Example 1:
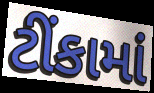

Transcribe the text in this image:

ટીંકામાં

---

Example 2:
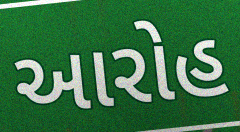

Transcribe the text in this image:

આરોહ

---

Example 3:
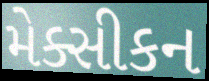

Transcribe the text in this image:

મેક્સીકન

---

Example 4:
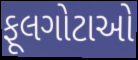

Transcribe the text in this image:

ફૂલગોટાઓ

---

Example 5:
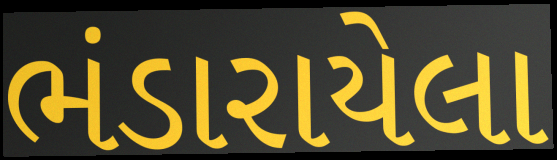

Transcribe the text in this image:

ભંડારાયેલા